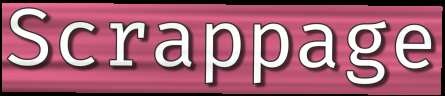
Scrappage